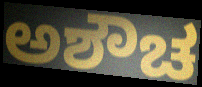
ಅಶೌಚ